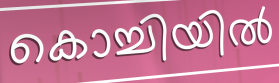
കൊച്ചിയിൽ